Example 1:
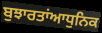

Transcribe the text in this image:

ਬੁਝਾਰਤਾਂਆਧੁਨਿਕ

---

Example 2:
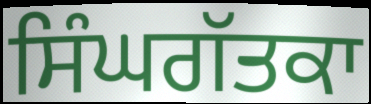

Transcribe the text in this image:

ਸਿੰਘਗੱਤਕਾ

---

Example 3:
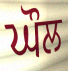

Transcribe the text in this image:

ਘੌਲ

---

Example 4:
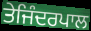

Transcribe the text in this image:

ਤੇਜਿੰਦਰਪਾਲ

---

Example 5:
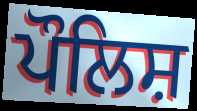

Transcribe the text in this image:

ਪੌਲਿਸ਼